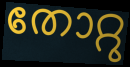
തോറ്റു